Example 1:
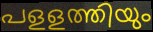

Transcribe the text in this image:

പളളത്തിയും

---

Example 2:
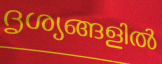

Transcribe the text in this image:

ദൃശ്യങ്ങളിൽ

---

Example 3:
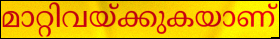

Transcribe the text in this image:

മാറ്റിവയ്ക്കുകയാണ്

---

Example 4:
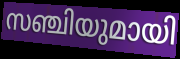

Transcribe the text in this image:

സഞ്ചിയുമായി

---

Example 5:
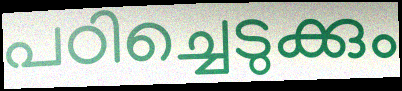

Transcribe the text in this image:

പഠിച്ചെടുക്കും